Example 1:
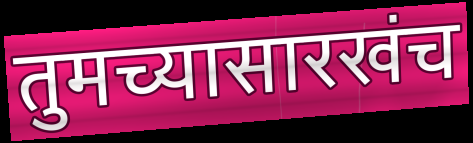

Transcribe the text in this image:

तुमच्यासारखंच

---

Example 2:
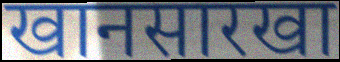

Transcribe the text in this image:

खानसारखा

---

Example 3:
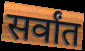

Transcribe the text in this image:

सर्वांत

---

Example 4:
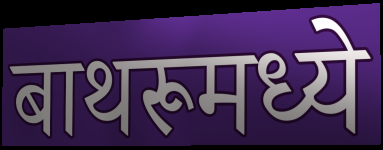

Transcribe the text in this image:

बाथरूमध्ये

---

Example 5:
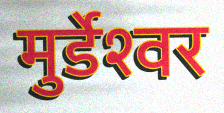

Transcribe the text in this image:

मुर्डेश्वर